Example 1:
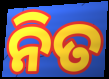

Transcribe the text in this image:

ନିତ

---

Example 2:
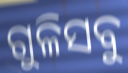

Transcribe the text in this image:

ଗୁଳିସବୁ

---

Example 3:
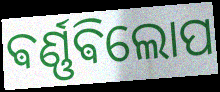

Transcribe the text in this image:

ଵର୍ଣ୍ଣଵିଲୋପ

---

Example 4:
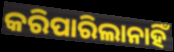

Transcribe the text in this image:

କରିପାରିଲାନାହିଁ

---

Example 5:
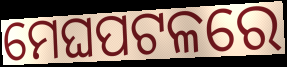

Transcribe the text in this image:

ମେଘପଟଳରେ